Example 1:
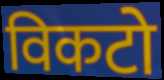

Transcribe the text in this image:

विकटो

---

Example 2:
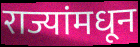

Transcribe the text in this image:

राज्यांमधून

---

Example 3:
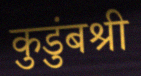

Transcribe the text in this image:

कुडुंबश्री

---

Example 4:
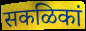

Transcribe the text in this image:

सकळिकां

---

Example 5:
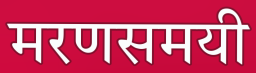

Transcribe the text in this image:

मरणसमयी